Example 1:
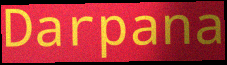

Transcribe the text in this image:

Darpana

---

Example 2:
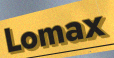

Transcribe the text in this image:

Lomax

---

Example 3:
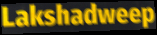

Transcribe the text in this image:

Lakshadweep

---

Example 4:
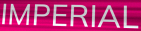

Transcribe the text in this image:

IMPERIAL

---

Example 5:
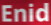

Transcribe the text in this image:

Enid